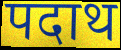
पदाथ